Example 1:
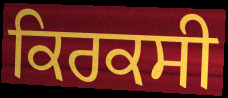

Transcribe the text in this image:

ਕਿਰਕਸੀ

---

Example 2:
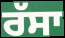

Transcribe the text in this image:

ਰੱਸਾ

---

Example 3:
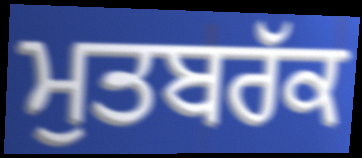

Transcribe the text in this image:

ਮੁਤਬਰੱਕ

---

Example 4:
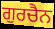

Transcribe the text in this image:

ਗੁਰਚੈਨ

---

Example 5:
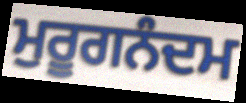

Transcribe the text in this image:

ਮੁਰੂਗਨੰਦਮ